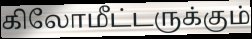
கிலோமீட்டருக்கும்